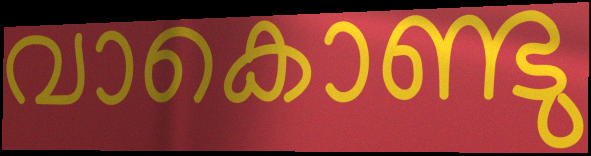
വാകൊണ്ടു